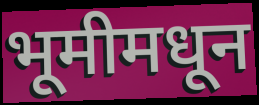
भूमीमधून